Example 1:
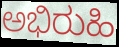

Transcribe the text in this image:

ಅಭಿರುಹಿ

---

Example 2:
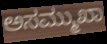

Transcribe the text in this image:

ಅಸಮ್ಮುಖಾ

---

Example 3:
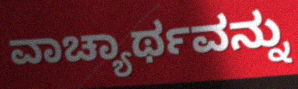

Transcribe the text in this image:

ವಾಚ್ಯಾರ್ಥವನ್ನು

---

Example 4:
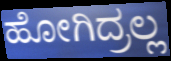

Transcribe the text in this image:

ಹೋಗಿದ್ರಲ್ಲ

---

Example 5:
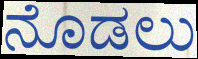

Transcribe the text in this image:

ನೊಡಲು